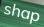
shap